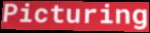
Picturing